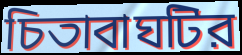
চিতাবাঘটির